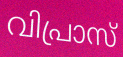
വിപ്രാസ്